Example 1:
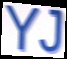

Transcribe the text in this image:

YJ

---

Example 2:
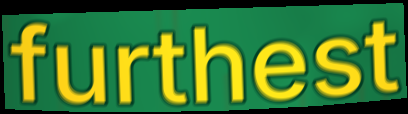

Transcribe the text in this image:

furthest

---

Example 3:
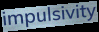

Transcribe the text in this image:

impulsivity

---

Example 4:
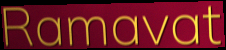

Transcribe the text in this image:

Ramavat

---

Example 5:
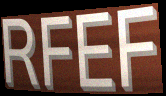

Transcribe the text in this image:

RFEF